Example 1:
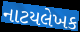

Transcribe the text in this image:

નાટયલેખક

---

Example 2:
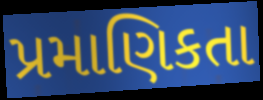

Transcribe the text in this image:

પ્રમાણિકતા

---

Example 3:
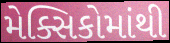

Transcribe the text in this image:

મેક્સિકોમાંથી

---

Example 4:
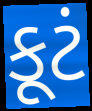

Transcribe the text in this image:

કૂટં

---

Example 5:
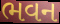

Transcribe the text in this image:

ભવન